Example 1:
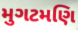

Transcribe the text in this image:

મુગટમણિ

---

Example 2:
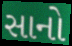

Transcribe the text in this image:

સાનો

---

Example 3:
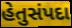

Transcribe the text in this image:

હેતુસંપદા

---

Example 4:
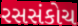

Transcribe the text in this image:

રસસંકોચ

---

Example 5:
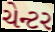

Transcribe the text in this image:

ચેન્ટર